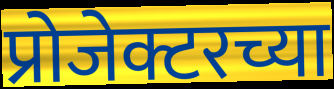
प्रोजेक्टरच्या